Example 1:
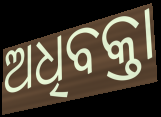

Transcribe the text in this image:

ଅଧିବକ୍ତା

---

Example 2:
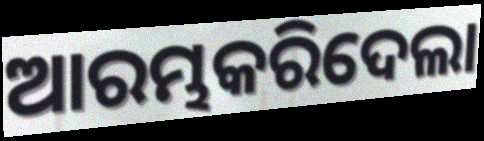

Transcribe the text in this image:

ଆରମ୍ଭକରିଦେଲା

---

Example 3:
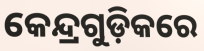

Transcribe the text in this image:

କେନ୍ଦ୍ରଗୁଡ଼ିକରେ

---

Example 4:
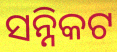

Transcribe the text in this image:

ସନ୍ନିକଟ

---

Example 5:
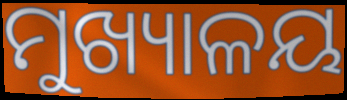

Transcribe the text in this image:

ମୁଖ୍ୟାଳୟ